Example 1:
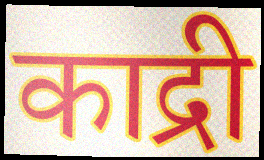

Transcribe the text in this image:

काद्री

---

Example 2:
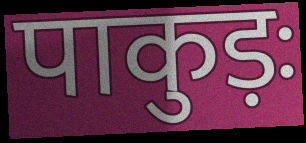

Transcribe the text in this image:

पाकुड़ः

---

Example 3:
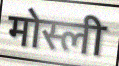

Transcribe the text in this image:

मोस्ली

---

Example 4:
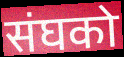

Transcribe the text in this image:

संघको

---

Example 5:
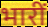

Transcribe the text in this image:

भारीं